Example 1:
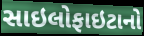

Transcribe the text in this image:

સાઇલોફાઇટાનો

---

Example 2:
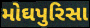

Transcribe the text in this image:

મોઘપુરિસા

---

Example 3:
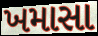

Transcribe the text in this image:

ખમાસા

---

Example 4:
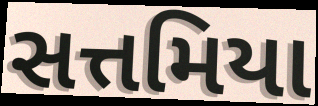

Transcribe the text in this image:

સત્તમિયા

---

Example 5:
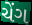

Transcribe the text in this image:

ચેંગ